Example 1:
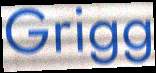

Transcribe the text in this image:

Grigg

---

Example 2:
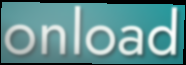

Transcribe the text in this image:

onload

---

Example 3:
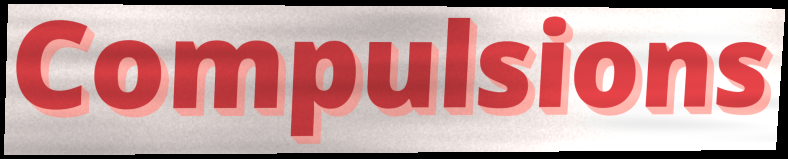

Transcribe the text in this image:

Compulsions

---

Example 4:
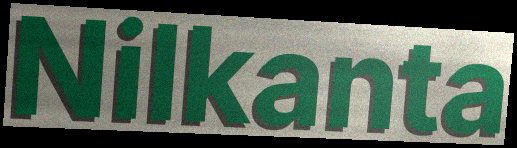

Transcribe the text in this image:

Nilkanta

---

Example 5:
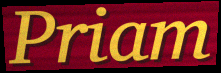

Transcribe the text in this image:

Priam